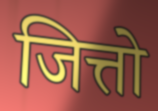
जित्तो